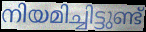
നിയമിച്ചിട്ടുണ്ട്